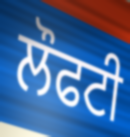
ਲੌਫਟੀ